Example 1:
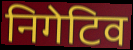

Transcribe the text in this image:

निगेटिव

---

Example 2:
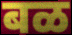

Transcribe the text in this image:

बळ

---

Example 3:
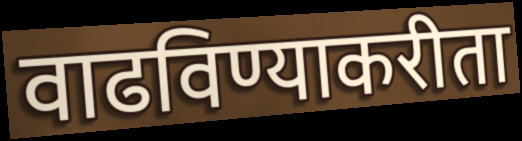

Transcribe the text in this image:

वाढविण्याकरीता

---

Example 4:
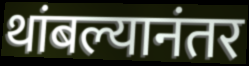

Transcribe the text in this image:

थांबल्यानंतर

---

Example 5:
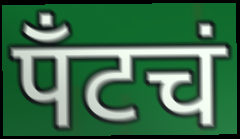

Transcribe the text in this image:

पँटचं